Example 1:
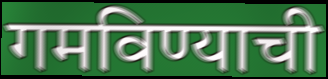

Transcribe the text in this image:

गमविण्याची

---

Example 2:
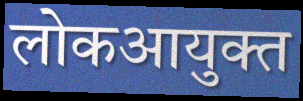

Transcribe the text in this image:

लोकआयुक्त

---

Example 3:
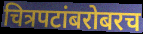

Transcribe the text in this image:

चित्रपटांबरोबरच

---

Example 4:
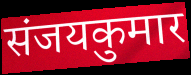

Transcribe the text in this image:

संजयकुमार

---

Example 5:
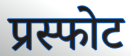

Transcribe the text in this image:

प्रस्फोट